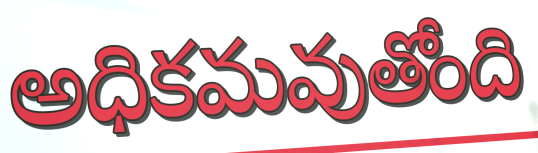
అధికమవుతోంది